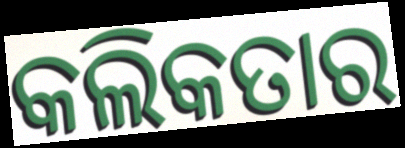
କଲିକତାର